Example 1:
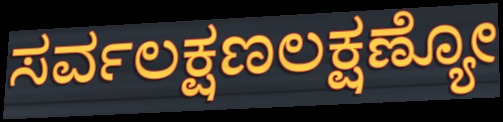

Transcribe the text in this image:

ಸರ್ವಲಕ್ಷಣಲಕ್ಷಣ್ಯೋ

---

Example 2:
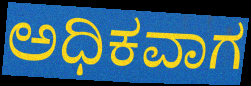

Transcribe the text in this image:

ಅಧಿಕವಾಗ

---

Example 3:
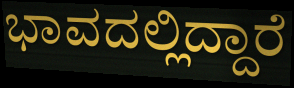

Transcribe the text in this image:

ಭಾವದಲ್ಲಿದ್ದಾರೆ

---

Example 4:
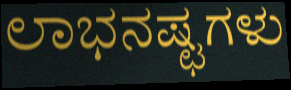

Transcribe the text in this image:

ಲಾಭನಷ್ಟಗಳು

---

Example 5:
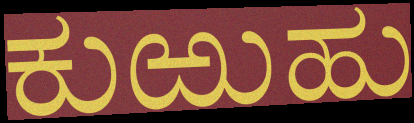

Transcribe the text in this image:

ಕುಱುಹು